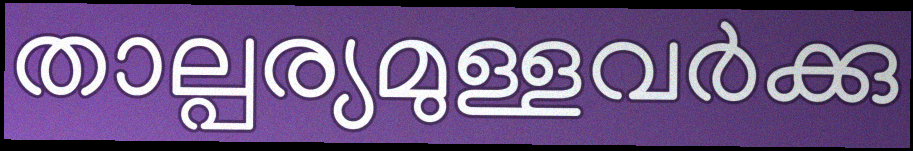
താല്പര്യമുള്ളവർക്കു